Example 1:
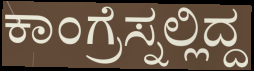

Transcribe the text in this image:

ಕಾಂಗ್ರೆಸ್ನಲ್ಲಿದ್ದ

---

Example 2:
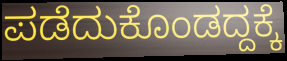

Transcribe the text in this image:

ಪಡೆದುಕೊಂಡದ್ದಕ್ಕೆ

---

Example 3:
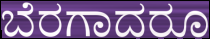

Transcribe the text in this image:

ಬೆರಗಾದರೂ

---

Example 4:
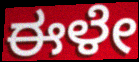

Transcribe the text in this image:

ಈಳೇ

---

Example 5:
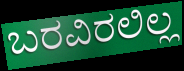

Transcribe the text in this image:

ಬರವಿರಲಿಲ್ಲ